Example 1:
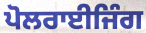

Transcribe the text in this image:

ਪੋਲਰਾਈਜਿੰਗ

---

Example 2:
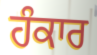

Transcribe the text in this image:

ਹੰਕਾਰ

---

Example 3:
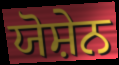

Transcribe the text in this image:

ਯੋਸ਼ੇਨ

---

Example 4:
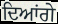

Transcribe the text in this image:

ਦਿਆਂਗੇ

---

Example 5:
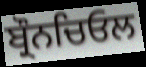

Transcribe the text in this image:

ਬ੍ਰੌਨਚਿਓਲ